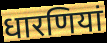
धारणियां